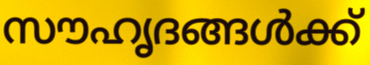
സൗഹൃദങ്ങൾക്ക്